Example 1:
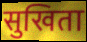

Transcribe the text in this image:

सुखिता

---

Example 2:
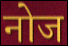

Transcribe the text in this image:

नोज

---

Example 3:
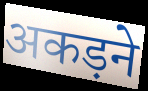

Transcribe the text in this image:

अकड़ने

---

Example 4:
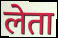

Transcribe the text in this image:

लेता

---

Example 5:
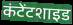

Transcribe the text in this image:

कंटेंटशाइड